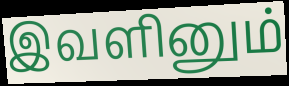
இவளினும்